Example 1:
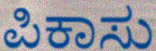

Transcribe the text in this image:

ಪಿಕಾಸು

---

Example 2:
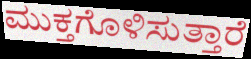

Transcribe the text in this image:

ಮುಕ್ತಗೊಳಿಸುತ್ತಾರೆ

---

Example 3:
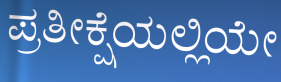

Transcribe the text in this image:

ಪ್ರತೀಕ್ಷೆಯಲ್ಲಿಯೇ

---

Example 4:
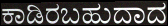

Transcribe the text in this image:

ಕಾಡಿರಬಹುದಾದ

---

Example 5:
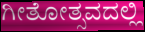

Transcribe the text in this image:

ಗೀತೋತ್ಸವದಲ್ಲಿ